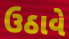
ઉઠાવે